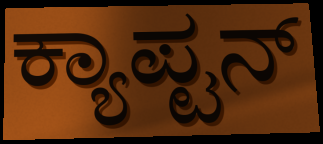
ಕ್ಯಾಪ್ಟನ್